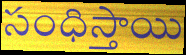
సంధిస్తాయి